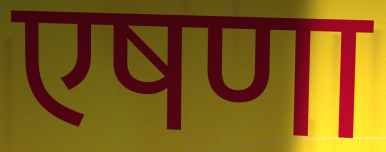
एषणा